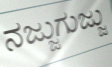
ನಜ್ಜುಗುಜ್ಜು